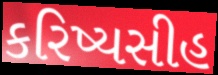
કરિષ્યસીહ